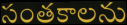
సంతకాలను